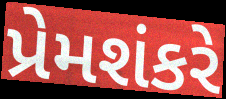
પ્રેમશંકરે